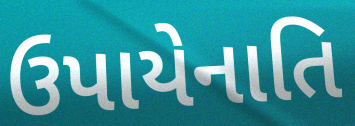
ઉપાયેનાતિ